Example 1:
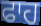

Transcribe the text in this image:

ਫਾਹ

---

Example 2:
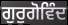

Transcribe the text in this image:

ਗੁਰੁਗੋਵਿੰਦ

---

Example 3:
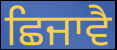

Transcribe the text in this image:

ਛਿਜਾਵੈ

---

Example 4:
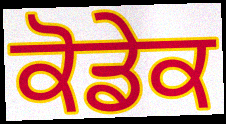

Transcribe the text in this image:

ਕੋਡੇਕ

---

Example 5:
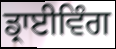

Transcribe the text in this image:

ਡ੍ਰਾਈਵਿੰਗ